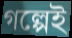
গল্পেই